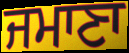
ਜਮਾਣਾ